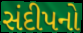
સંદીપનો